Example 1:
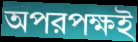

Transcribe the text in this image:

অপরপক্ষই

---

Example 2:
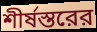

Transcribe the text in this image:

শীর্ষস্তরের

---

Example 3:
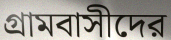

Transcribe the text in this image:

গ্রামবাসীদের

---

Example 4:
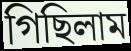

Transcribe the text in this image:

গিছিলাম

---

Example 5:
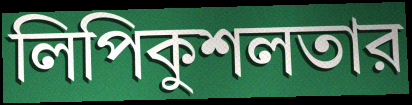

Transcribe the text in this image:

লিপিকুশলতার